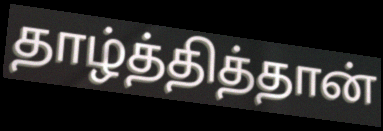
தாழ்த்தித்தான்